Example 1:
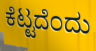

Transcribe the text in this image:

ಕೆಟ್ಟದೆಂದು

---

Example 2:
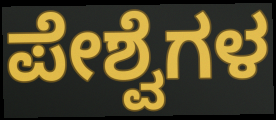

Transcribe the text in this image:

ಪೇಶ್ವೆಗಳ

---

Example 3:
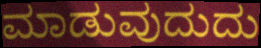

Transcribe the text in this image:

ಮಾಡುವುದುದು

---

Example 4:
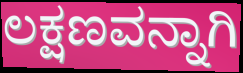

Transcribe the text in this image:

ಲಕ್ಷಣವನ್ನಾಗಿ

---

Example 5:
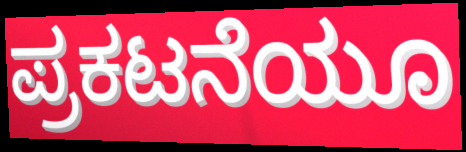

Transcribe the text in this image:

ಪ್ರಕಟನೆಯೂ